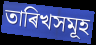
তাৰিখসমূহ